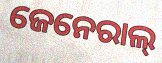
ଜେନେରାଲ୍